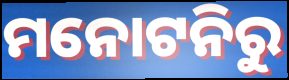
ମନୋଟନିରୁ